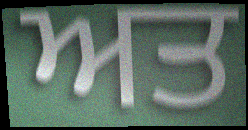
ਅਤ